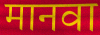
मानवा